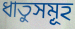
ধাতুসমূহ